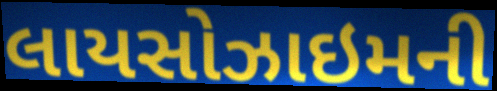
લાયસોઝાઇમની